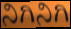
ನಿಗಿನಿಗಿ